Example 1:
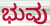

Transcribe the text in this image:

ಭುವು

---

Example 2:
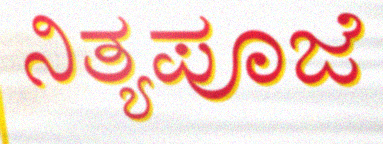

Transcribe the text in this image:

ನಿತ್ಯಪೂಜೆ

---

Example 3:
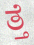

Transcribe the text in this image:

ತ್ತೆ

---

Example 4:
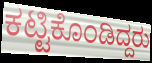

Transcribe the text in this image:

ಕಟ್ಟಿಕೊಂಡಿದ್ದರು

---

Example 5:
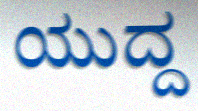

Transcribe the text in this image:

ಯುದ್ದ